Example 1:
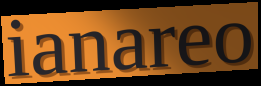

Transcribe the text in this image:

ianareo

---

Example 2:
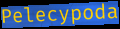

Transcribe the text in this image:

Pelecypoda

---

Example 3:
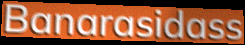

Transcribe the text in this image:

Banarasidass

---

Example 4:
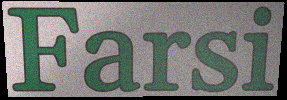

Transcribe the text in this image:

Farsi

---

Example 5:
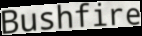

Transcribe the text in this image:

Bushfire